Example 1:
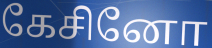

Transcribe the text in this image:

கேசினோ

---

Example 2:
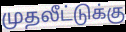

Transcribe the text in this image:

முதலீட்டுக்கு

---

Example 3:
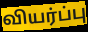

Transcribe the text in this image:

வியர்ப்பு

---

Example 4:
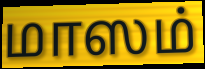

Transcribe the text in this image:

மாஸம்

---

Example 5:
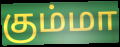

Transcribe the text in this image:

கும்மா